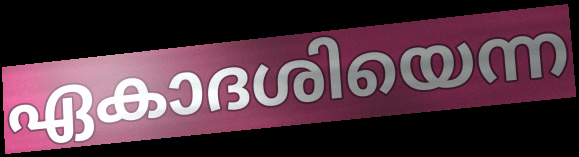
ഏകാദശിയെന്ന